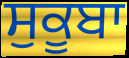
ਸੁਕੂਬਾ